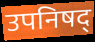
उपनिषद्